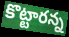
కొట్టారన్న